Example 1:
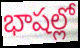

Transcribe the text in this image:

భాషల్లో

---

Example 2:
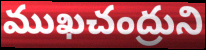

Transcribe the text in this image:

ముఖచంద్రుని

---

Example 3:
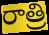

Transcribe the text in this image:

రాత్రి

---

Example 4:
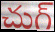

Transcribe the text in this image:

చుగ్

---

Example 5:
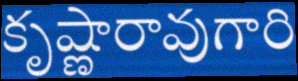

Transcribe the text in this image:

కృష్ణారావుగారి